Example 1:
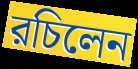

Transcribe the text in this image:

রচিলেন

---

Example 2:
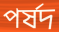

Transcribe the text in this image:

পর্ষদ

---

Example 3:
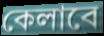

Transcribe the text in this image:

কেলাবে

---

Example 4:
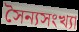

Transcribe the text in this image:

সৈন্যসংখ্যা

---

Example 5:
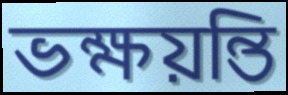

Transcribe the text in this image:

ভক্ষয়ন্তি